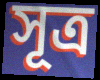
সূত্ৰ